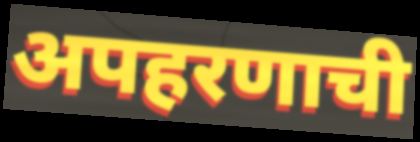
अपहरणाची